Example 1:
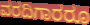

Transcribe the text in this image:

ವರದಿಗಾರರೂ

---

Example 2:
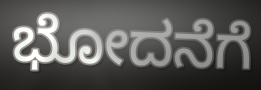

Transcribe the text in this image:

ಭೋದನೆಗೆ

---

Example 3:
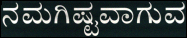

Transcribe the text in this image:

ನಮಗಿಷ್ಟವಾಗುವ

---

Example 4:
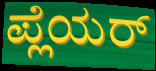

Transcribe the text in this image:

ಪ್ಲೆಯರ್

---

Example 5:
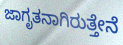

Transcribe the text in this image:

ಜಾಗೃತನಾಗಿರುತ್ತೇನೆ